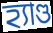
হ্যাণ্ড